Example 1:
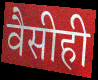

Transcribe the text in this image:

वैसीही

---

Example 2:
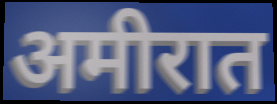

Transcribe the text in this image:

अमीरात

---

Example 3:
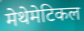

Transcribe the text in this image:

मेथेमेटिकल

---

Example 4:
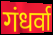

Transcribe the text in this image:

गंधर्वा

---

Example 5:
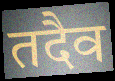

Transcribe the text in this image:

तदैव